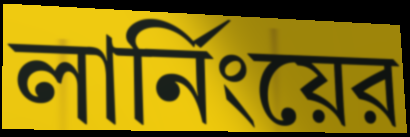
লার্নিংয়ের